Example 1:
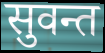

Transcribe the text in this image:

सुवन्त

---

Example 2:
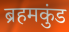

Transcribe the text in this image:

ब्रहमकुंड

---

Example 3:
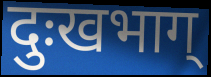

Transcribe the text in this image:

दुःखभाग्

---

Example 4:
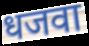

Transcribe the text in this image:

धजवा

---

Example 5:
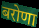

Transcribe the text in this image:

बरोणा